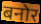
बनोर